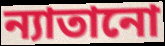
ন্যাতানো